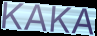
KAKA